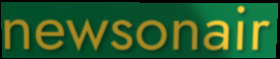
newsonair